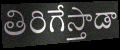
తిరిగేస్తాడా